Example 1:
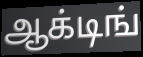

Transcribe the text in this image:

ஆக்டிங்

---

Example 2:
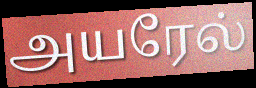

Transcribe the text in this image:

அயரேல்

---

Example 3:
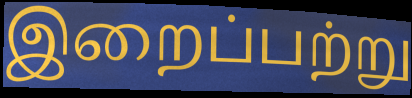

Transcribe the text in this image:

இறைப்பற்று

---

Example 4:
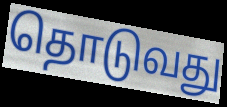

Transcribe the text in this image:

தொடுவது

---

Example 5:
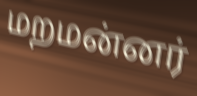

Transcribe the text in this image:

மறமன்னர்